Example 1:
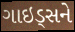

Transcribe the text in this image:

ગાઇડ્સને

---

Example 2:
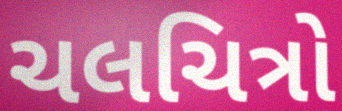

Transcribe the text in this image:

ચલચિત્રો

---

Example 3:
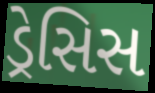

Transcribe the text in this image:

ડ્રેસિસ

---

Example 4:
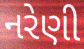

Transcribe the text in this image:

નરેણી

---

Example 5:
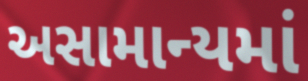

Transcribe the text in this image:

અસામાન્યમાં